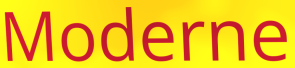
Moderne